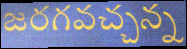
జరగవచ్చన్న